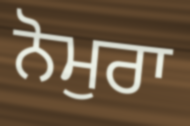
ਨੋਮੁਰਾ